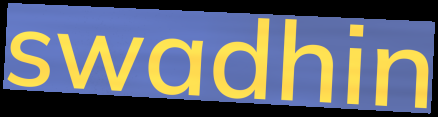
swadhin